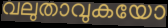
വലുതാവുകയോ